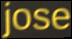
jose